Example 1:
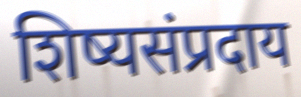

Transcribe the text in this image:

शिष्यसंप्रदाय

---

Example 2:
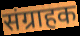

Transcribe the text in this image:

संग्राहक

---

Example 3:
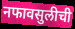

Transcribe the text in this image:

नफावसुलीची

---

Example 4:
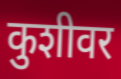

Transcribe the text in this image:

कुशीवर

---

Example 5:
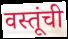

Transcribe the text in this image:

वस्तूंची